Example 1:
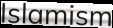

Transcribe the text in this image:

Islamism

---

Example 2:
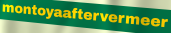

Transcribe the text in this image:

montoyaaftervermeer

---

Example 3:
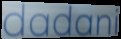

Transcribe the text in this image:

dadani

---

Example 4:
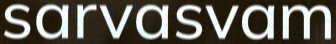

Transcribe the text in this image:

sarvasvam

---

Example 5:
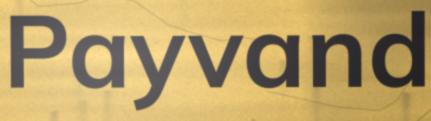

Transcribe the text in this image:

Payvand